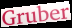
Gruber